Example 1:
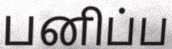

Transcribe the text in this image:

பனிப்ப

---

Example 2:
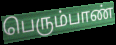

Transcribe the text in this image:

பெரும்பாண்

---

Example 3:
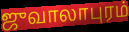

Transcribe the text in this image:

ஜுவாலாபுரம்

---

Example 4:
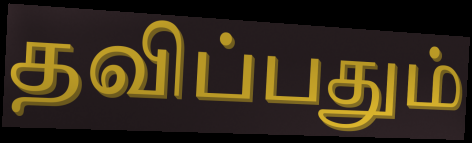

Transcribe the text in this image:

தவிப்பதும்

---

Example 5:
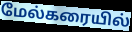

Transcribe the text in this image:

மேல்கரையில்